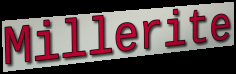
Millerite